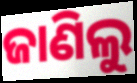
ଜାଣିଲୁ